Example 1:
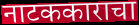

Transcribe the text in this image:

नाटककाराचा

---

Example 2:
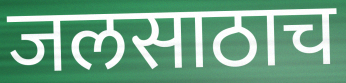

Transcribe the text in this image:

जलसाठाच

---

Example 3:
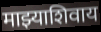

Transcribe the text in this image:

माझ्याशिवाय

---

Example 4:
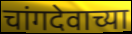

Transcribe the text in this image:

चांगदेवाच्या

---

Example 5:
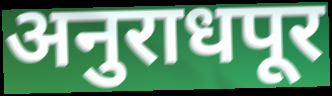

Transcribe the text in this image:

अनुराधपूर